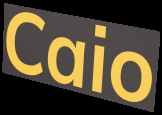
Caio